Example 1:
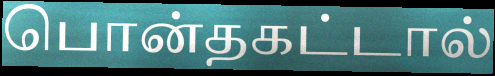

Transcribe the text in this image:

பொன்தகட்டால்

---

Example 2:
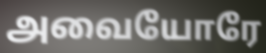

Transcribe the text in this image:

அவையோரே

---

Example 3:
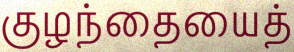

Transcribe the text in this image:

குழந்தையைத்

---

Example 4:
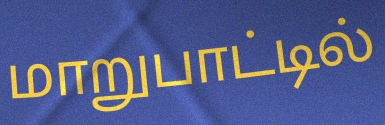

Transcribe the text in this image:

மாறுபாட்டில்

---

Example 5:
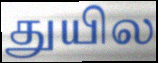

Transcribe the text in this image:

துயில